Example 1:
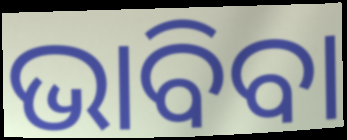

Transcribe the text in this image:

ଭାବିବା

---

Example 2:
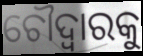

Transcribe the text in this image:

ଚୌଦ୍ୱାରକୁ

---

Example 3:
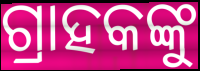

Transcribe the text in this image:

ଗ୍ରାହକଙ୍କୁ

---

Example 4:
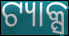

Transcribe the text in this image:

ଟ୍ୟାକ୍ସ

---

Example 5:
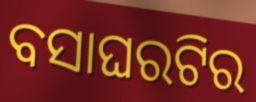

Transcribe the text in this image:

ବସାଘରଟିର